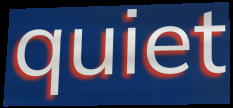
quiet